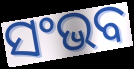
ସଂଭବ